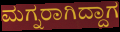
ಮಗ್ನರಾಗಿದ್ದಾಗ